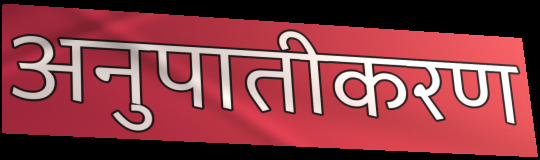
अनुपातीकरण